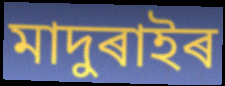
মাদুৰাইৰ